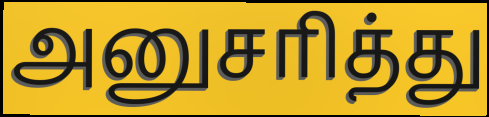
அனுசரித்து